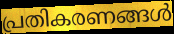
പ്രതികരണങ്ങൾ